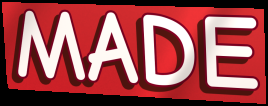
MADE